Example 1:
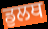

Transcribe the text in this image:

ਡੁਲਥ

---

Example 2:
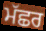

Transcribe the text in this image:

ਮੱਛਰ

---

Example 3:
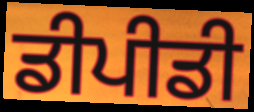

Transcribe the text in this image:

ਡੀਪੀਡੀ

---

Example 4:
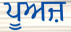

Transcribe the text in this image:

ਪੂਅਜ਼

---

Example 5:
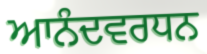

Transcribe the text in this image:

ਆਨੰਦਵਰਧਨ